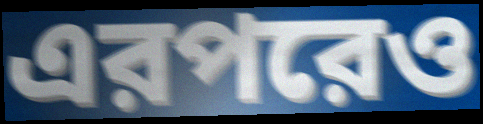
এরপরেও